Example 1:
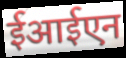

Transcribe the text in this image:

ईआईएन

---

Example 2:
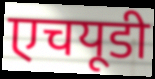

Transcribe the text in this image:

एचयूडी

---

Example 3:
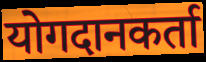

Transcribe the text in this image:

योगदानकर्ता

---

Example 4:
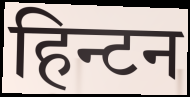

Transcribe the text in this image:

हिन्टन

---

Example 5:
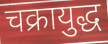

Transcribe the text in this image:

चक्रायुद्ध